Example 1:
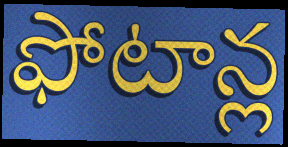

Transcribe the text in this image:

ఫోటాన్ల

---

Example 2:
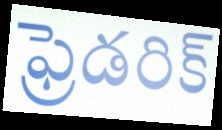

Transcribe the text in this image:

ఫ్రెడరిక్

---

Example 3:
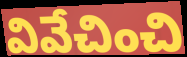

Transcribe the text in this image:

వివేచించి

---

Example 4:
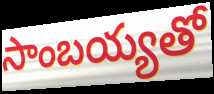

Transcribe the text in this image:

సాంబయ్యతో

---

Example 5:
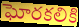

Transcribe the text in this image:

ఘోరకలికి